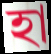
হা